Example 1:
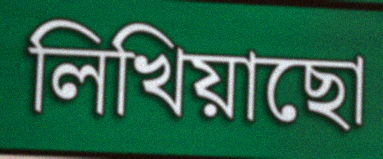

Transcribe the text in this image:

লিখিয়াছো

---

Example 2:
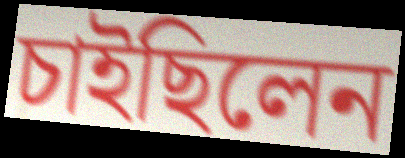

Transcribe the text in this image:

চাইছিলেন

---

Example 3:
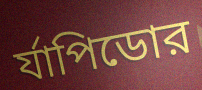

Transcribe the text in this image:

র্যাপিডোর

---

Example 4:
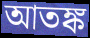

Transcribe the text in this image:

আতঙ্ক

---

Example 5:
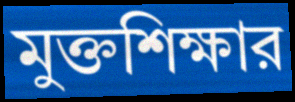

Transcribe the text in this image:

মুক্তশিক্ষার